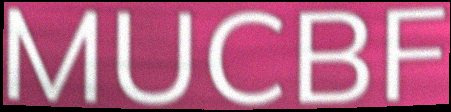
MUCBF